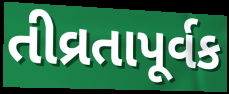
તીવ્રતાપૂર્વક